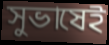
সুভাষেই